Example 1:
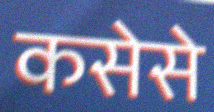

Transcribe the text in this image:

कसेसे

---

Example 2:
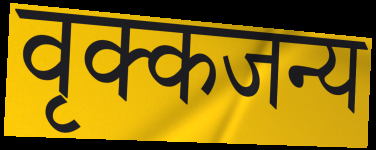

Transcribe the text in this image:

वृक्कजन्य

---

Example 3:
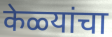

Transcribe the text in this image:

केळ्यांचा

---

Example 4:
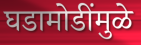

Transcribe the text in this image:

घडामोडींमुळे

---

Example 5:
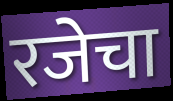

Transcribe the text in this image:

रजेचा